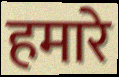
हमारे